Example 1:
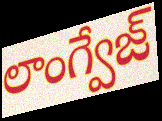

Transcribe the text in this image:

లాంగ్వేజ్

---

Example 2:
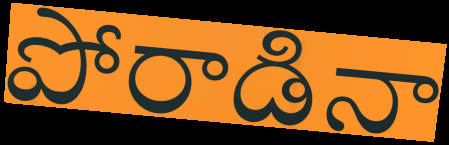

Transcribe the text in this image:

పోరాడినా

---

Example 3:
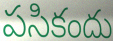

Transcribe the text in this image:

పసికందు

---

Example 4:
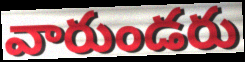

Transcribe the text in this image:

వారుండరు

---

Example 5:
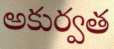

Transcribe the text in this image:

అకుర్వత